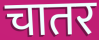
चातर